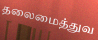
தலைமைத்துவ